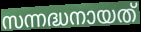
സന്നദ്ധനായത്